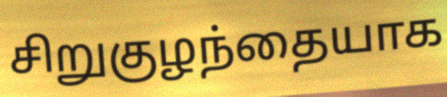
சிறுகுழந்தையாக